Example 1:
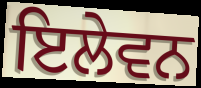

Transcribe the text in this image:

ਇਲੇਵਨ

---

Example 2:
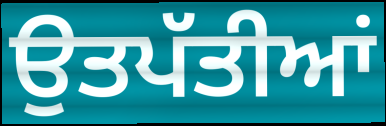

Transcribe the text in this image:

ਉਤਪੱਤੀਆਂ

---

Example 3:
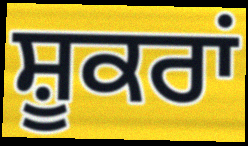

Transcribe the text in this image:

ਸ਼ੂਕਰਾਂ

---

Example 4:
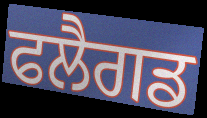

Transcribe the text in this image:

ਫਲੈਗਡ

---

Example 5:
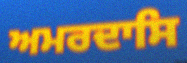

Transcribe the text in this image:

ਅਮਰਦਾਸਿ